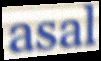
asal